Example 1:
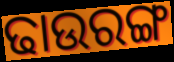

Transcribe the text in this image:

ଢାଉରଙ୍ଗ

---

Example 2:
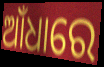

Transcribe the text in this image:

ଆଁଧାରେ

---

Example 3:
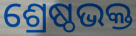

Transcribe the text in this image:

ଶ୍ରେଷ୍ଠଭକ୍ତ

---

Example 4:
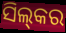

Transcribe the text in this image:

ସିଲ୍‍କର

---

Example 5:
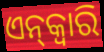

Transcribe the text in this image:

ଏନ୍‌କ୍ୱାରି